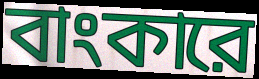
বাংকারে